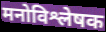
मनोविश्लेषक